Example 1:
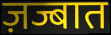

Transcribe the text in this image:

ज़ज्बात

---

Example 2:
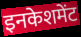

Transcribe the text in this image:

इनकेशमेंट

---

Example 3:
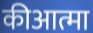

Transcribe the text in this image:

कीआत्मा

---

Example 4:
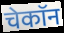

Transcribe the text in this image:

चेकॉन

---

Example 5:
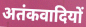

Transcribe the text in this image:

अतंकवादियों